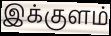
இக்குளம்